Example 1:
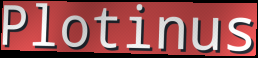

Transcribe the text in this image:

Plotinus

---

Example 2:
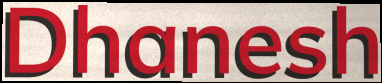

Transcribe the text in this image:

Dhanesh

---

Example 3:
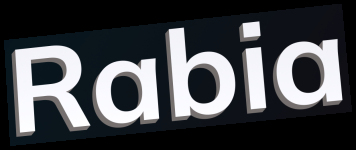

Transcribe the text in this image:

Rabia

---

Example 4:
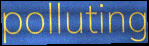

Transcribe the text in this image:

polluting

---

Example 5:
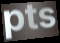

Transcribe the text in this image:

pts